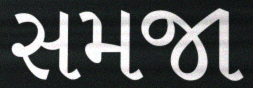
સમજા